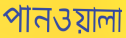
পানওয়ালা